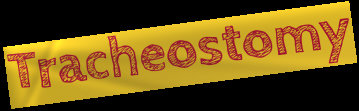
Tracheostomy